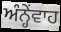
ਅੰਨ੍ਹੇਂਵਾਹ